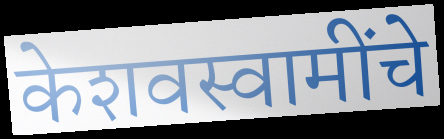
केशवस्वामींचे